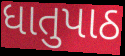
ધાતુપાઠ